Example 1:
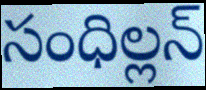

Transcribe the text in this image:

సంధిల్లన్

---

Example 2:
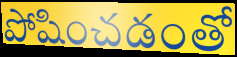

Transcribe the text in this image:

పోషించడంతో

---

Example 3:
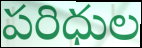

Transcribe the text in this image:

పరిధుల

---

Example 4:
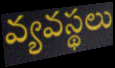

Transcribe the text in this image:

వ్యవస్థలు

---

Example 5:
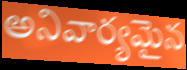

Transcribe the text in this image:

అనివార్యమైన